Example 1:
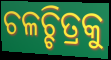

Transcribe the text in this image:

ଚଳଚ୍ଚିତ୍ରକୁ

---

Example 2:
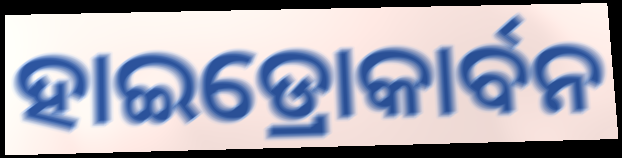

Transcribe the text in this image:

ହାଇଡ୍ରୋକାର୍ବନ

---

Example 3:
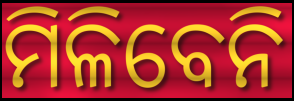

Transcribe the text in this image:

ମିଳିବେନି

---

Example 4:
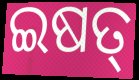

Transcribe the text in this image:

ଇଷତ୍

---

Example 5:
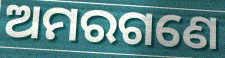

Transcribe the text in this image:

ଅମରଗଣେ